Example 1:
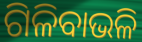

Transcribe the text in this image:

ଗିଳିବାଭଳି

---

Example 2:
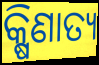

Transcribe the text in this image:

କ୍ଷିଣାତ୍ୟ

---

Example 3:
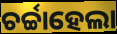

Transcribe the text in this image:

ଚର୍ଚ୍ଚାହେଲା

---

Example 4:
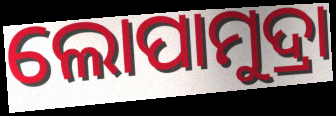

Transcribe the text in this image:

ଲୋପାମୁଦ୍ରା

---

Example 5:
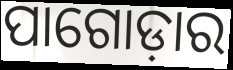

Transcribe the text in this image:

ପାଗୋଡ଼ାର